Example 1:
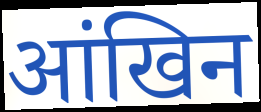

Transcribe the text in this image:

आंखिन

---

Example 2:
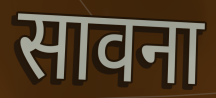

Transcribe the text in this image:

सावना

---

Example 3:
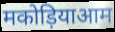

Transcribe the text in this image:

मकोड़ियाआम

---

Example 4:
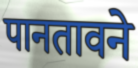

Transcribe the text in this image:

पानतावने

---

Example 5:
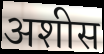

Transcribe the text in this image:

अशीस